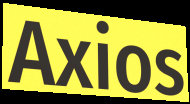
Axios